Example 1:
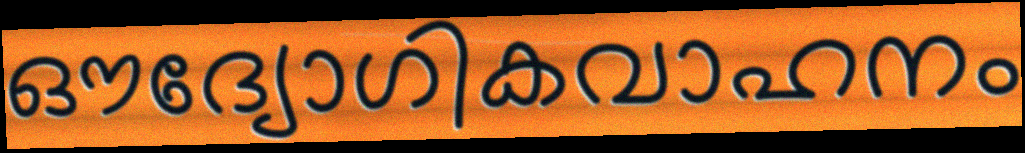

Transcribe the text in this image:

ഔദ്യോഗികവാഹനം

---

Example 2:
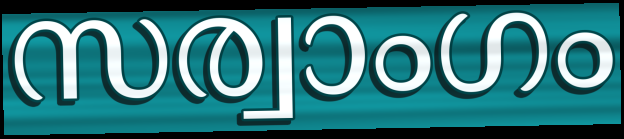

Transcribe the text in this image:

സര്വാംഗം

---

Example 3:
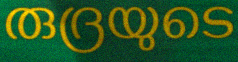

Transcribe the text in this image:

രുദ്രയുടെ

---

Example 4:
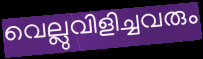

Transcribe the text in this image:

വെല്ലുവിളിച്ചവരും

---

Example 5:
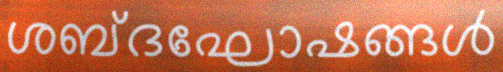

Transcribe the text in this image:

ശബ്ദഘോഷങ്ങൾ